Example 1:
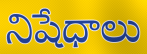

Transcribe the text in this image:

నిషేధాలు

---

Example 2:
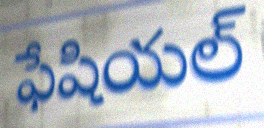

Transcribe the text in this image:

ఫేషియల్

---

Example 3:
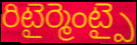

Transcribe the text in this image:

రిటైర్మెంట్పై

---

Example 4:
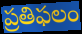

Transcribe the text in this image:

ప్రతిఫలం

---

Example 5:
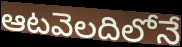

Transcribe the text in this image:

ఆటవెలదిలోనే